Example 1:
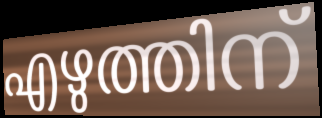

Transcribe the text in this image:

എഴുത്തിന്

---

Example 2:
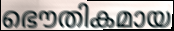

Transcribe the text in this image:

ഭൌതികമായ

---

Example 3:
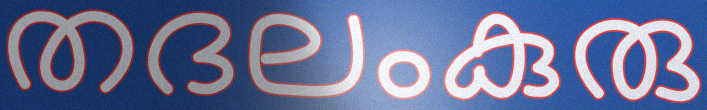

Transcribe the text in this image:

തദലംകുരു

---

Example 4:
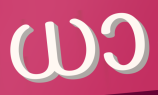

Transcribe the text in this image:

ധാ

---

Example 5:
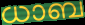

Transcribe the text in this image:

ധാബ